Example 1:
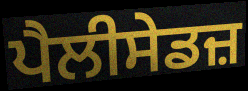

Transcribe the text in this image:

ਪੈਲੀਸੇਡਜ਼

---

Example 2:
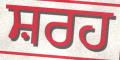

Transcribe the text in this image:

ਸ਼ਰਹ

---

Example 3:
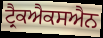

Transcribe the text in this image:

ਟ੍ਰੈਕਐਕਸਐਨ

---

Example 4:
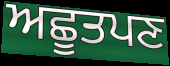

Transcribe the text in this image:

ਅਛੂਤਪਣ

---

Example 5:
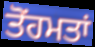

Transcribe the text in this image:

ਤੋਂਹਮਤਾਂ